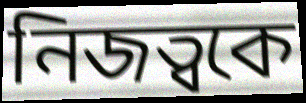
নিজত্বকে